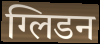
ग्लिडन